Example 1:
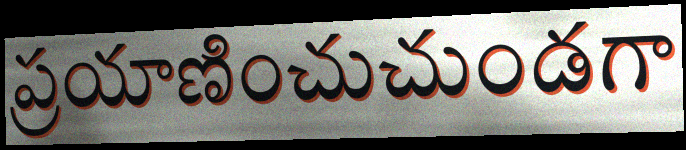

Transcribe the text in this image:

ప్రయాణించుచుండగా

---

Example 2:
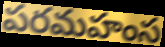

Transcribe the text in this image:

పరమహంస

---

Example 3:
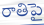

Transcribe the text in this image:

రాతిపై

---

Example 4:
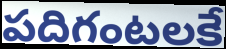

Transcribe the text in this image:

పదిగంటలకే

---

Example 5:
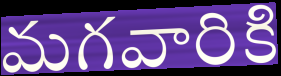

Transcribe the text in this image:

మగవారికి